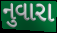
નુવારા